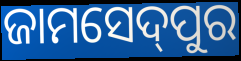
ଜାମସେଦ୍‌ପୁର